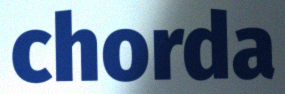
chorda